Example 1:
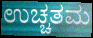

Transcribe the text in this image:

ಉಚ್ಚತಮ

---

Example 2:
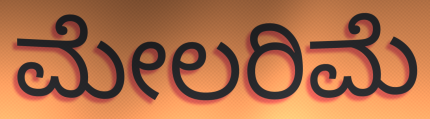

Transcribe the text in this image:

ಮೇಲರಿಮೆ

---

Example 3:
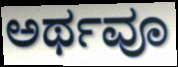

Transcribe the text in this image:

ಅರ್ಥವೂ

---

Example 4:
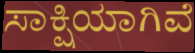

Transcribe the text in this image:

ಸಾಕ್ಷಿಯಾಗಿವೆ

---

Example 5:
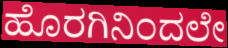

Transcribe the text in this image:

ಹೊರಗಿನಿಂದಲೇ